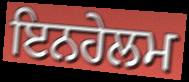
ਇਨਹੇਲਮ